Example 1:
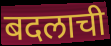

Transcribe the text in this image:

बदलाची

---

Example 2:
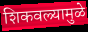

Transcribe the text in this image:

शिकवल्यामुळे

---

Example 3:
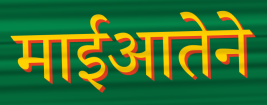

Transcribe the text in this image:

माईआतेने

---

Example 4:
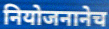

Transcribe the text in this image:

नियोजनानेच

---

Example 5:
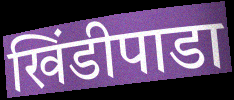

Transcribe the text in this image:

खिंडीपाडा